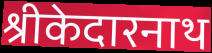
श्रीकेदारनाथ